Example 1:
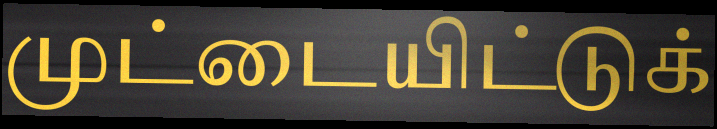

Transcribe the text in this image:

முட்டையிட்டுக்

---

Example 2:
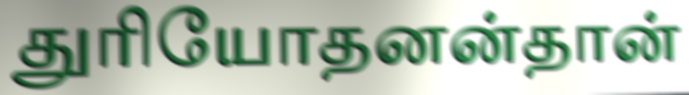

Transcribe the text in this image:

துரியோதனன்தான்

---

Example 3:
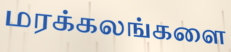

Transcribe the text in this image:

மரக்கலங்களை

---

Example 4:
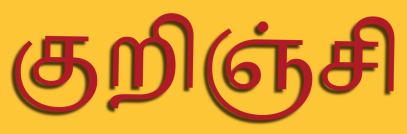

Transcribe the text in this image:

குறிஞ்சி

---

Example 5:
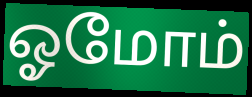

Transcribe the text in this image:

ஓமோம்